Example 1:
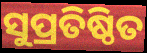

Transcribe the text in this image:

ସୁପ୍ରତିଷ୍ଠିତ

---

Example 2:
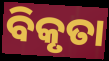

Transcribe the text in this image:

ବିକୃତା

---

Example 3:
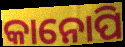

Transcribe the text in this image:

କାନୋପି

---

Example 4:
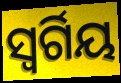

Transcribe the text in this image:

ସ୍ୱର୍ଗିୟ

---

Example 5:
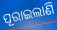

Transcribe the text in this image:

ପୂରାଇଲାଣି